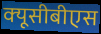
क्यूसीबीएस